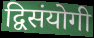
द्विसंयोगी